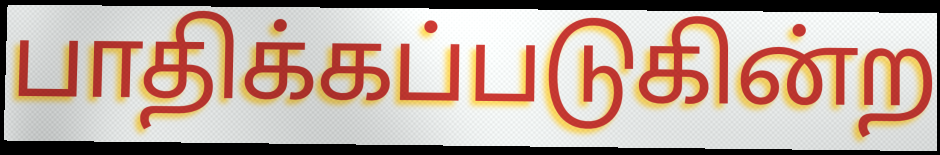
பாதிக்கப்படுகின்ற